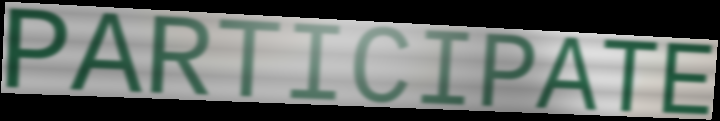
PARTICIPATE